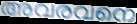
അവരവനെ